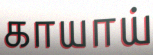
காயாய்